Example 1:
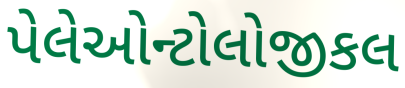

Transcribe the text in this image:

પેલેઓન્ટોલોજીકલ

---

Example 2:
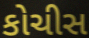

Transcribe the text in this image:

કોચીસ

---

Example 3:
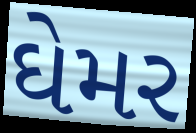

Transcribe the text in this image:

ઘેમર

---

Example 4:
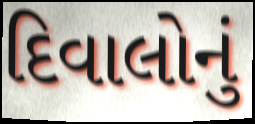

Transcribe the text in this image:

દિવાલોનું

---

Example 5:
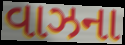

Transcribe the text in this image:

વાઝના